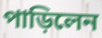
পাড়িলেন